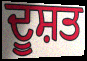
ਦੂਸ਼ਤ